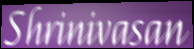
Shrinivasan